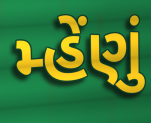
મ્હેંણું